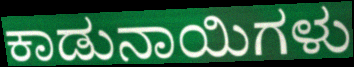
ಕಾಡುನಾಯಿಗಳು